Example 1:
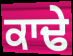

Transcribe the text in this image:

ਕਾਢੇ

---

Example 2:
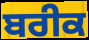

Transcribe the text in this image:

ਬਰੀਕ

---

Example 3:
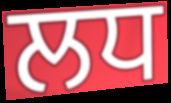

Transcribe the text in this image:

ਲਧ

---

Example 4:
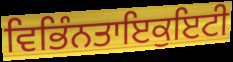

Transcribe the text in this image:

ਵਿਭਿੰਨਤਾਇਕੁਇਟੀ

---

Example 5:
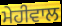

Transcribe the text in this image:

ਮੇਹੀਵਾਲ